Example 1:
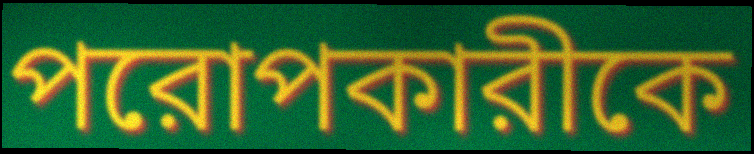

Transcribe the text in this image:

পরোপকারীকে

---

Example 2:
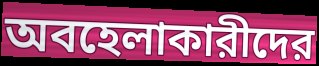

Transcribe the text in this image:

অবহেলাকারীদের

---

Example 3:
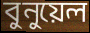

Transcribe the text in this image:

বুনুয়েল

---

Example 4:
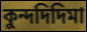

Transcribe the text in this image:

কুন্দদিদিমা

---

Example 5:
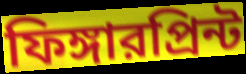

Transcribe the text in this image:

ফিঙ্গারপ্রিন্ট